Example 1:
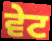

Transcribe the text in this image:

ਵੇਟ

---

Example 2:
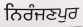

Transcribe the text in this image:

ਨਿਰੰਜਣਪੁਰ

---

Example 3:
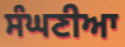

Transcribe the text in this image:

ਸੰਘਣੀਆ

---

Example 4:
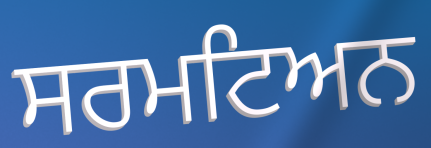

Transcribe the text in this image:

ਸਰਮਟਿਅਨ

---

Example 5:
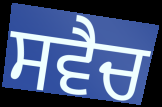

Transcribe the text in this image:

ਸਵੈਚ